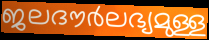
ജലദൗർലഭ്യമുള്ള